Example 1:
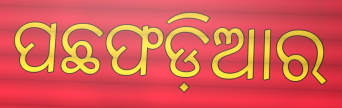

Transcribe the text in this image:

ପଛଫଡ଼ିଆର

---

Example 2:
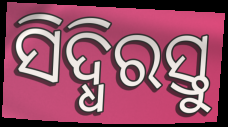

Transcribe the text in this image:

ସିଦ୍ଧିରସ୍ତୁ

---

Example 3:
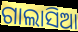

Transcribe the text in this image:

ଗାଲାସିଆ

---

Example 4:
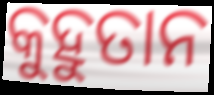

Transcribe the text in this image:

କୁହୁତାନ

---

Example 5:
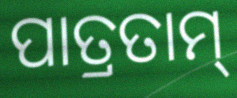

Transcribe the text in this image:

ପାତ୍ରତାମ୍